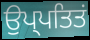
ਉਪ੍ਪਤਿਤਂ